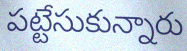
పట్టేసుకున్నారు